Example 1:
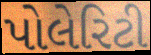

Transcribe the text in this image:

પોલેરિટી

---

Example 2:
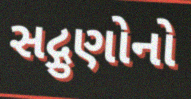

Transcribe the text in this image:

સદ્ગુણોનો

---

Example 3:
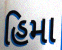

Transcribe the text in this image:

હિમા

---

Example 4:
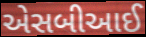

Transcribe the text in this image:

એસબીઆઈ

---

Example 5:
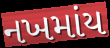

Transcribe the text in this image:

નખમાંય